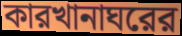
কারখানাঘরের